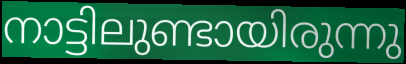
നാട്ടിലുണ്ടായിരുന്നു